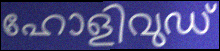
ഹോളിവുഡ്